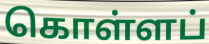
கொள்ளப்